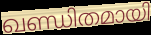
ഖണ്ഡിതമായി